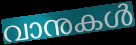
വാനുകൾ